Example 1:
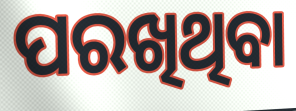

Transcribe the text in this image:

ପରଖିଥିବା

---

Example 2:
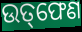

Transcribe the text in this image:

ଉତ୍‌ଫେଣ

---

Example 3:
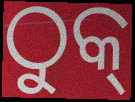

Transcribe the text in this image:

ଠୁକ୍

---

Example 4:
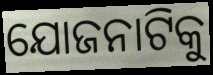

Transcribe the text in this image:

ଯୋଜନାଟିକୁ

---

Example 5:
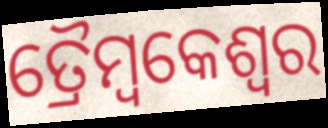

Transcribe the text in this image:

ତ୍ରୈମ୍ବକେଶ୍ୱର